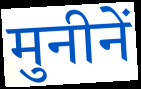
मुनीनें